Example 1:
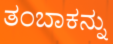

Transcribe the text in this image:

ತಂಬಾಕನ್ನು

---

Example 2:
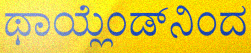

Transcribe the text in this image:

ಥಾಯ್ಲೆಂಡ್‌ನಿಂದ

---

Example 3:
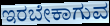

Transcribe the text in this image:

ಇರಬೇಕಾಗುವ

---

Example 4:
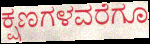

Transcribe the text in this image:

ಕ್ಷಣಗಳವರೆಗೂ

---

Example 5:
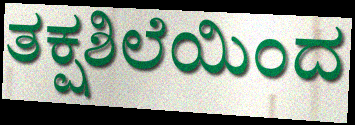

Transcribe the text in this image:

ತಕ್ಷಶಿಲೆಯಿಂದ